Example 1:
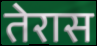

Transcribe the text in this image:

तेरास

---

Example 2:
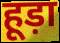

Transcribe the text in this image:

हूड़ा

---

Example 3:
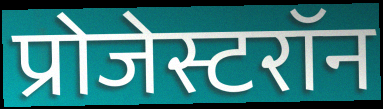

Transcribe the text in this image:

प्रोजेस्टरॉन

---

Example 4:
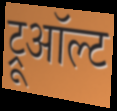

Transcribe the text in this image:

ट्रूऑल्ट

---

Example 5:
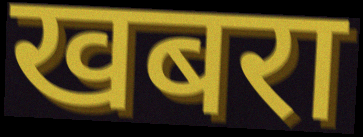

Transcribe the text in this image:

खबरा